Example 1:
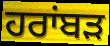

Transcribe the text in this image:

ਹਰਾਂਬੜ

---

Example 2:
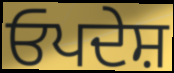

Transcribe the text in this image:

ਓਪਦੇਸ਼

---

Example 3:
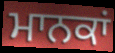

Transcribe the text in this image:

ਮਾਨਕਾਂ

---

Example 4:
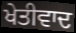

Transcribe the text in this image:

ਖੇਤੀਵਾਦ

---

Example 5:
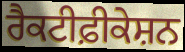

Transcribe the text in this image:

ਰੈਕਟੀਫ਼ੀਕੇਸ਼ਨ